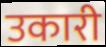
उकारी